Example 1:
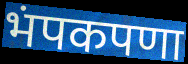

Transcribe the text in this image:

भंपकपणा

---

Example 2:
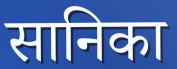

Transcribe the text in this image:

सानिका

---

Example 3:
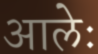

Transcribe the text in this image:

आलेः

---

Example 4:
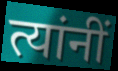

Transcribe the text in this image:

त्यांनीं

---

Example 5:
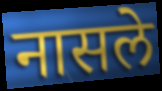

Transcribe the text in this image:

नासले